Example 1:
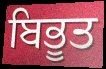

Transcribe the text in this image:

ਬਿਭੂਤ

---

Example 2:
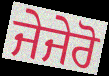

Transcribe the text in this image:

ਜੇਜੇਰੋ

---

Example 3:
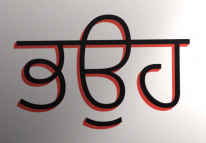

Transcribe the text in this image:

ਭਉਹ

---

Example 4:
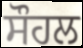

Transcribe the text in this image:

ਸੌਹਲ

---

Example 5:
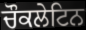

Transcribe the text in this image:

ਚੌਕਲੇਟਿਨ